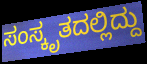
ಸಂಸ್ಕೃತದಲ್ಲಿದ್ದು